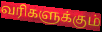
வரிகளுக்கும்